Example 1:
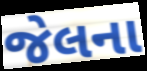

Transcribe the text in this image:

જેલના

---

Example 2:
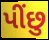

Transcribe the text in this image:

પીંછુ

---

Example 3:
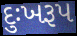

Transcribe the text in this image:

દુઃખરૂપ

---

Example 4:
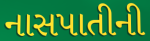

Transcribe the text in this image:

નાસપાતીની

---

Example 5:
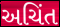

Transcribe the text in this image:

અચિંત